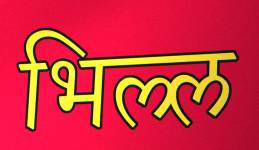
भिल्ल